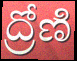
ద్రోణి